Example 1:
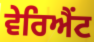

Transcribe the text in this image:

ਵੇਰਿਐਂਟ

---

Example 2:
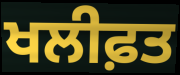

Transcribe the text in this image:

ਖਲੀਫ਼ਤ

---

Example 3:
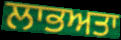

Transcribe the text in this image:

ਲਾਭਅਤਾ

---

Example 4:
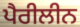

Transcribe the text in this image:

ਪੈਰੀਲੀਨ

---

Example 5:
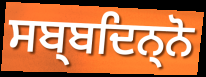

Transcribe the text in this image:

ਸਬ੍ਬਦਿਨ੍ਨੋ